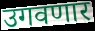
उगवणार